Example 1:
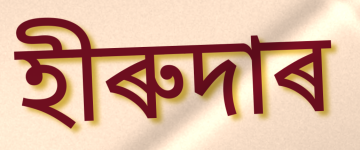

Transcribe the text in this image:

হীৰুদাৰ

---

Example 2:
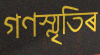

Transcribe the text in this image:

গণস্মৃতিৰ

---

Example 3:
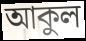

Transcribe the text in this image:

আকুল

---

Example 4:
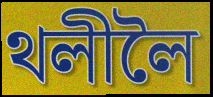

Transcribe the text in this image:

থলীলৈ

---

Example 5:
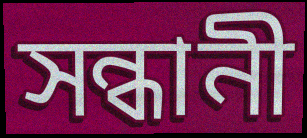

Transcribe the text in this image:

সন্ধানী